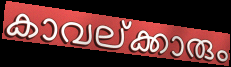
കാവല്ക്കാരും